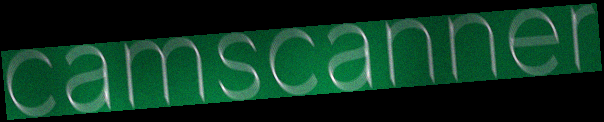
camscanner